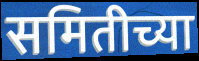
समितीच्या